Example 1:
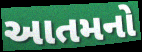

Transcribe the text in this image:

આતમનો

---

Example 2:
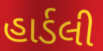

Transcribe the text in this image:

હાર્ડલી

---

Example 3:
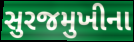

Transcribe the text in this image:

સુરજમુખીના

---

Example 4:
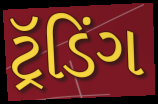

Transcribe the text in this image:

ટ્રૅડિંગ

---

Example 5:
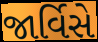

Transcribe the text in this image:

જાર્વિસે